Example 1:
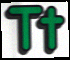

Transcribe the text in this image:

Tt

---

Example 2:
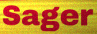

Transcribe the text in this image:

Sager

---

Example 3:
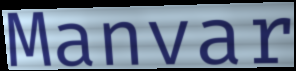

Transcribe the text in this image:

Manvar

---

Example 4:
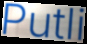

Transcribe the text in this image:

Putli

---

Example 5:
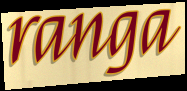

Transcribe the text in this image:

ranga